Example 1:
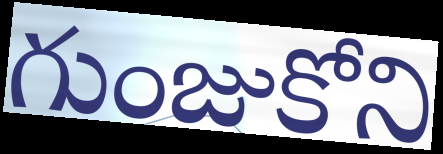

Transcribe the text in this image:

గుంజుకోని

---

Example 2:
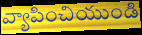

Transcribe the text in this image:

వ్యాపించియుండి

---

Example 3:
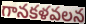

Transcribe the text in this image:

గానకళవలన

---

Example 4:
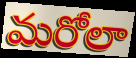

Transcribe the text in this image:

మరోలా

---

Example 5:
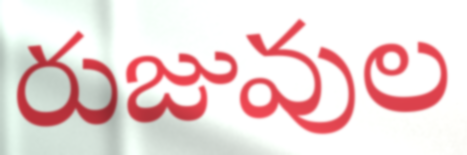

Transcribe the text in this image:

రుజువుల